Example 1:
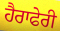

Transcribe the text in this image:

ਹੈਰਾਫੇਰੀ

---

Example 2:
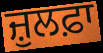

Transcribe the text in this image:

ਜ਼ੁਲਫ਼ਾ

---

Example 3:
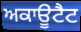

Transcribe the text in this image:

ਅਕਾਊਟੈਟ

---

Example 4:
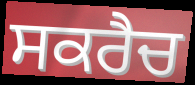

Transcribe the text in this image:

ਸਕਰੈਚ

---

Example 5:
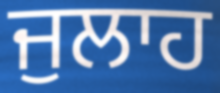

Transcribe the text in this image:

ਜੁਲਾਹ